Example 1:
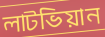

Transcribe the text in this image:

লাটভিয়ান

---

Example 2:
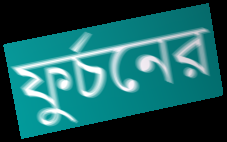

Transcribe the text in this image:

ফুর্চনের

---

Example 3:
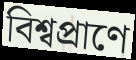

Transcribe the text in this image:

বিশ্বপ্রাণে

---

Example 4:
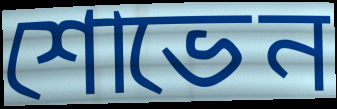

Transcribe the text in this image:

শোভেন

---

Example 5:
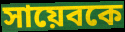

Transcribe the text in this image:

সায়েবকে